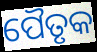
ପୈତୃକ